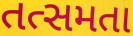
તત્સમતા